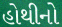
હોથીનો